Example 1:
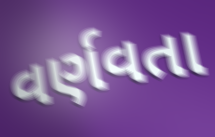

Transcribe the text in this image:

વર્ણવતા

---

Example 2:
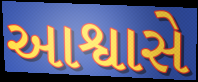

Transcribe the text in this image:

આશ્વાસે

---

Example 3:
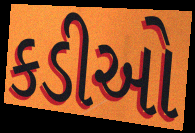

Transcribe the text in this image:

કડીઓ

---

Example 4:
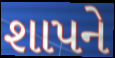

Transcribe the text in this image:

શાપને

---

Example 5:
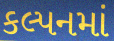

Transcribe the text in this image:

કલ્પનમાં